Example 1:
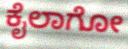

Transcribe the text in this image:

ಕೈಲಾಗೋ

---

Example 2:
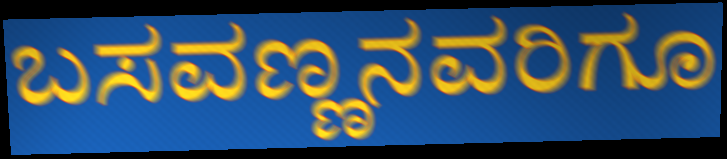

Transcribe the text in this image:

ಬಸವಣ್ಣನವರಿಗೂ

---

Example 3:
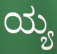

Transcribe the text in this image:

ಯ್ಯ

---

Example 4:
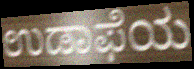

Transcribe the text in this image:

ಉಡಾಫೆಯ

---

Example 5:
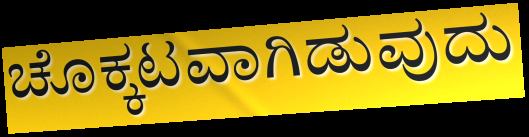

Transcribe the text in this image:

ಚೊಕ್ಕಟವಾಗಿಡುವುದು